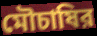
মৌচাষির